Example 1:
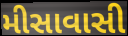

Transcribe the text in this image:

મીસાવાસી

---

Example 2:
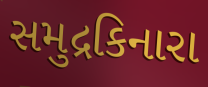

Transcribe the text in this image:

સમુદ્રકિનારા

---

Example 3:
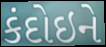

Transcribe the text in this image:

કંદોઇને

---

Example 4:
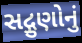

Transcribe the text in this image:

સદ્ગુણોનું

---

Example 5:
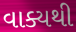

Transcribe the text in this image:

વાક્યથી